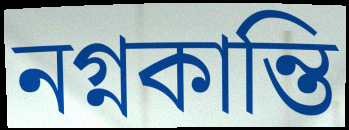
নগ্নকান্তি